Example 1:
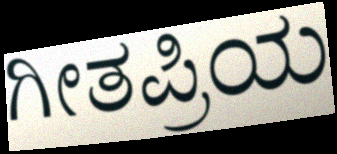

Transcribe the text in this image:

ಗೀತಪ್ರಿಯ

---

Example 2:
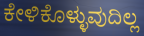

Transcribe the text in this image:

ಕೇಳಿಕೊಳ್ಳುವುದಿಲ್ಲ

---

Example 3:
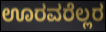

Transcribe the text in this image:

ಊರವರೆಲ್ಲರ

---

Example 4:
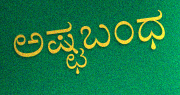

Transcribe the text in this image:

ಅಷ್ಟಬಂಧ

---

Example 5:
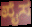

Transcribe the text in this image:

ಪೈಸ